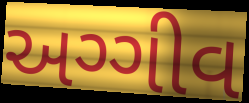
અગ્ગીવ